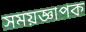
সময়জ্ঞাপক